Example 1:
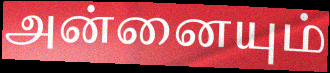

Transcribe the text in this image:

அன்னையும்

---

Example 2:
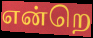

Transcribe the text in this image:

என்றெ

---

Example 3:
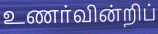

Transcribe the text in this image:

உணர்வின்றிப்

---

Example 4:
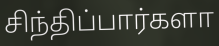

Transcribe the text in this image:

சிந்திப்பார்களா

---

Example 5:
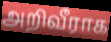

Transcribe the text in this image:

அறிவீராக